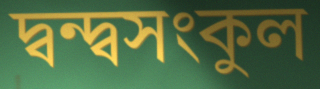
দ্বন্দ্বসংকুল